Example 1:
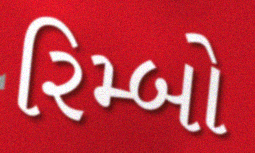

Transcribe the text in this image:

રિમ્બો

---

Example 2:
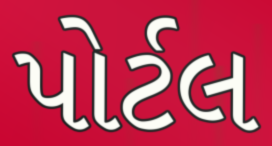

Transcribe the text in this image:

પોર્ટલ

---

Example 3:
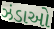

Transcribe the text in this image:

ઝંડાઓ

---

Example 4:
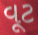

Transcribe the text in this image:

વૂટ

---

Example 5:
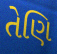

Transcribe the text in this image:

તેણિ